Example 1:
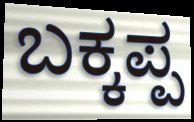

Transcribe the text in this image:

ಬಕ್ಕಪ್ಪ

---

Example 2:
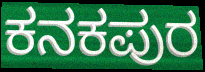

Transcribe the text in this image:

ಕನಕಪುರ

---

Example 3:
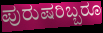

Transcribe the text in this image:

ಪುರುಷರಿಬ್ಬರೂ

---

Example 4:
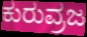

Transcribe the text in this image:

ಕುರುವ್ರಜ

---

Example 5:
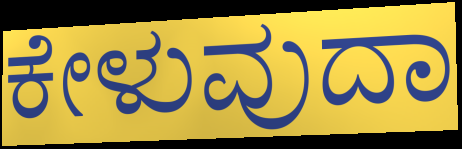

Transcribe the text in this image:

ಕೇಳುವುದಾ